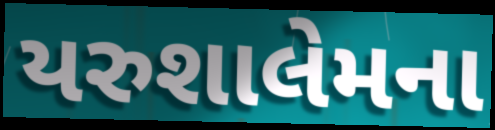
યરુશાલેમના